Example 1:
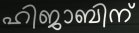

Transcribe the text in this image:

ഹിജാബിന്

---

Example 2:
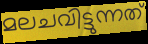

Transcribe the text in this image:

മലചവിട്ടുന്നത്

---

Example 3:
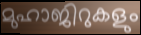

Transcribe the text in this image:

മുഹാജിറുകളും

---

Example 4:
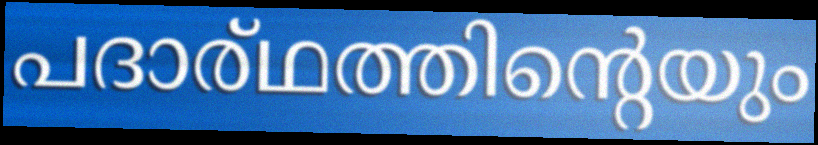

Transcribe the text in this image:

പദാര്ഥത്തിന്റെയും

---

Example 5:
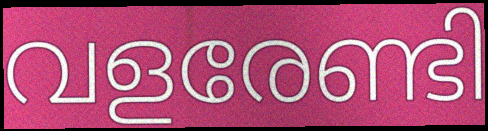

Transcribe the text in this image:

വളരേണ്ടി